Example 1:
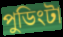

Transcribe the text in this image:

পুডিংটা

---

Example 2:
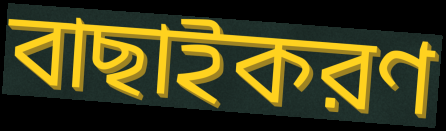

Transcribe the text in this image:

বাছাইকরণ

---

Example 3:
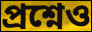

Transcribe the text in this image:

প্রশ্নেও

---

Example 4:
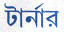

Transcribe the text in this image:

টার্নার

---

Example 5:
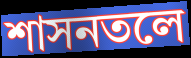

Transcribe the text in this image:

শাসনতলে